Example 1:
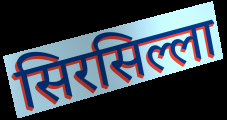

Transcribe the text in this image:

सिरसिल्ला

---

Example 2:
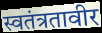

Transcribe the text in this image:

स्वतंत्रतावीर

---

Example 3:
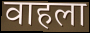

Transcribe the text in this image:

वाहला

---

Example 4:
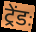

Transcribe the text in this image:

ट्रेंडः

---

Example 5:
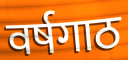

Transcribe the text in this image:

वर्षगाठ